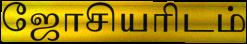
ஜோசியரிடம்